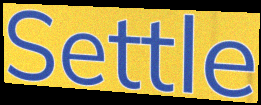
Settle